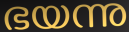
ഭയന്നു